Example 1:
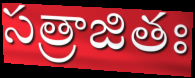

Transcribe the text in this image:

సత్రాజితః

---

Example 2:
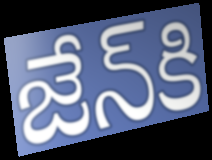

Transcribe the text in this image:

జేన్‌కి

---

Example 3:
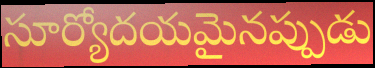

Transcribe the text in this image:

సూర్యోదయమైనప్పుడు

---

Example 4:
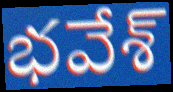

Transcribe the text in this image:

భవేశ్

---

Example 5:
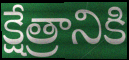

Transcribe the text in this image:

క్షేత్రానికి